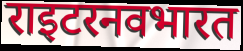
राइटरनवभारत